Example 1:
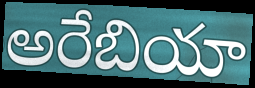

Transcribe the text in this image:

అరేబియా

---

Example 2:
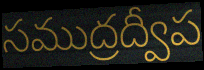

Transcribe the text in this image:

సముద్రద్వీప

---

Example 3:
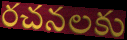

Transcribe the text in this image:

రచనలకు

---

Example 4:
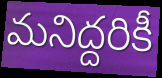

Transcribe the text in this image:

మనిద్దరికీ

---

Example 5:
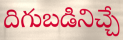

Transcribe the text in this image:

దిగుబడినిచ్చే